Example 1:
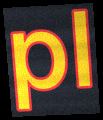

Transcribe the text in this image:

pl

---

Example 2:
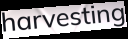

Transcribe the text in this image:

harvesting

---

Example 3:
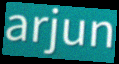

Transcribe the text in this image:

arjun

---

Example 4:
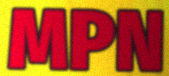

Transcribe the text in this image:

MPN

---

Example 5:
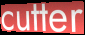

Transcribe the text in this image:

cutter